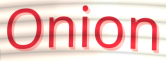
Onion